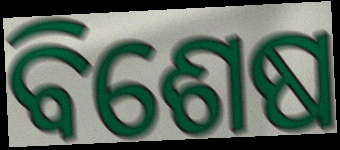
ବିଶେଷ